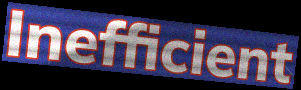
Inefficient